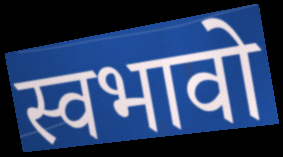
स्वभावो